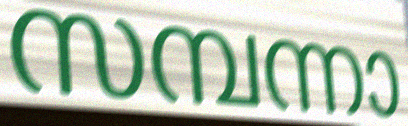
സമ്പന്നാ